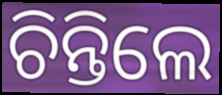
ଚିନ୍ତିଲେ